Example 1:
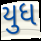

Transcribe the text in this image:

યુધ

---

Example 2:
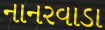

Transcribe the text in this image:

નાનરવાડા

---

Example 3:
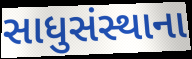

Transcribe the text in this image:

સાધુસંસ્થાના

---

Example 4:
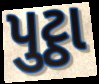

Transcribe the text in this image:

પુટ્ઠા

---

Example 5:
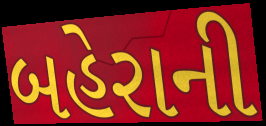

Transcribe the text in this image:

બહેરાની